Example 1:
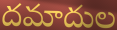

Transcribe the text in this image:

దమాదుల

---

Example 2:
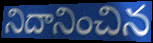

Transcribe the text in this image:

నిదానించిన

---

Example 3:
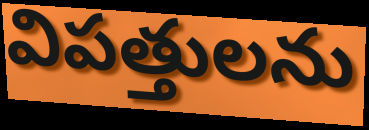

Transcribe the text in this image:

విపత్తులను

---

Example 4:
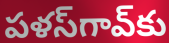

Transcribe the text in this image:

పళస్‌గావ్‌కు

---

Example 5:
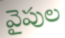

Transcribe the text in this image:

వైపుల